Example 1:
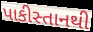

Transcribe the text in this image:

પાકીસ્તાનથી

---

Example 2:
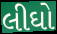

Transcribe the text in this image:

લીઘો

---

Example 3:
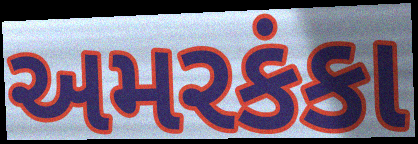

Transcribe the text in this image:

અમરકંકા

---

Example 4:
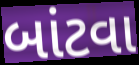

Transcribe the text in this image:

બાંટવા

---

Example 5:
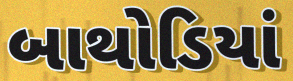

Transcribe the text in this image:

બાથોડિયાં